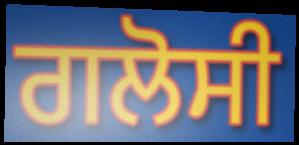
ਗਲੋਸੀ